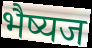
भैष्यज